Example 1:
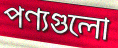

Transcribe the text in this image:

পণ্যগুলো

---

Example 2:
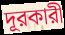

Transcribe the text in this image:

দূরকারী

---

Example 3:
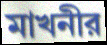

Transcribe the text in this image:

মাখনীর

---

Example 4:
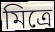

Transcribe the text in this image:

মিত্রে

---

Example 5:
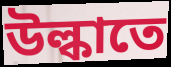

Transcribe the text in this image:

উল্কাতে